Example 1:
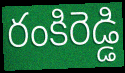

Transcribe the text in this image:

రంకిరెడ్డి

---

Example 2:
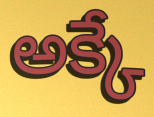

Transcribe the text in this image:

అక్కే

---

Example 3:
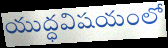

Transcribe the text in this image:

యుద్ధవిషయంలో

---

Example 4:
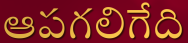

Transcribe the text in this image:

ఆపగలిగేది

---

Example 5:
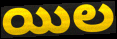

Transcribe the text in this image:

యిల